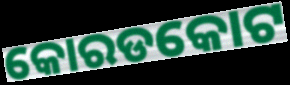
କୋରଡକୋଟ